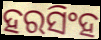
ହରସିଂହ